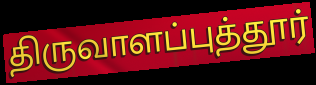
திருவாளப்புத்தூர்